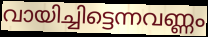
വായിച്ചിട്ടെന്നവണ്ണം